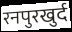
रनपुरखुर्द